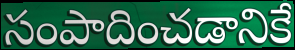
సంపాదించడానికే